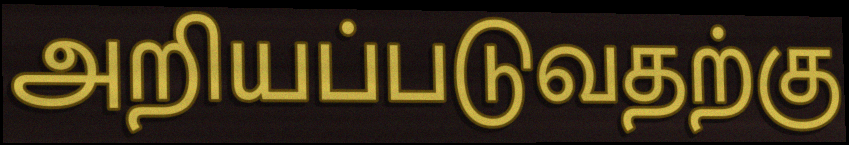
அறியப்படுவதற்கு